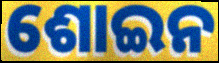
ଶୋଇନ